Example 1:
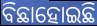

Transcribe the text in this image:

ବିଛାହୋଇଛି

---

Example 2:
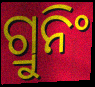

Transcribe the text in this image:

ଗ୍ରୁନିଂ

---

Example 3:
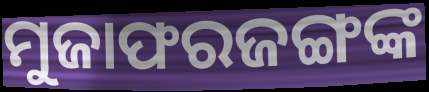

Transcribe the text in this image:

ମୁଜାଫରଜଙ୍ଗଙ୍କ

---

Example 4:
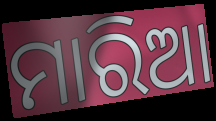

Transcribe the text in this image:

ମାରିଆ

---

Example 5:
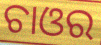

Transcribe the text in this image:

ଚାଓର